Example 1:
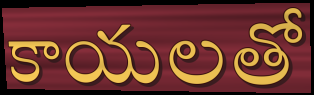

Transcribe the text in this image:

కాయలతో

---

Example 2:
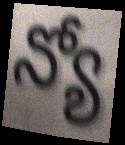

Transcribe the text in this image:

న్యో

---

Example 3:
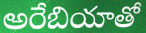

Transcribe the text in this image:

అరేబియాతో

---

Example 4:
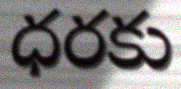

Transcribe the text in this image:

ధరకు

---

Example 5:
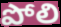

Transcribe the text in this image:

పోలి